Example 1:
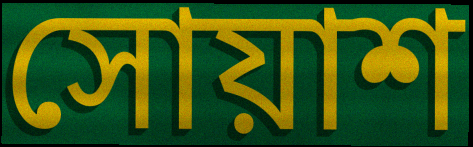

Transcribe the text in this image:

সোয়াশ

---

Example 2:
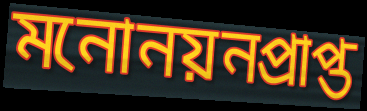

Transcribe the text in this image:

মনোনয়নপ্রাপ্ত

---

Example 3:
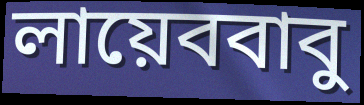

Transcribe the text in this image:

লায়েববাবু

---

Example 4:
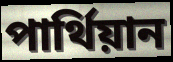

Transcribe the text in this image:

পার্থিয়ান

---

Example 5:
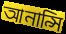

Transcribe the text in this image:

আনান্সি